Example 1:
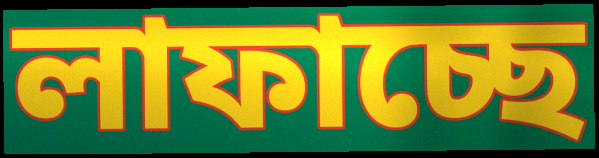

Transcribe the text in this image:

লাফাচ্ছে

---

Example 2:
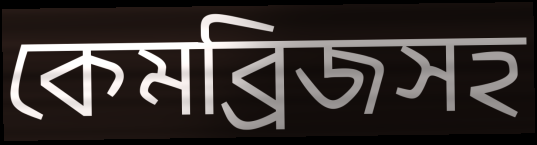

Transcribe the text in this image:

কেমব্রিজসহ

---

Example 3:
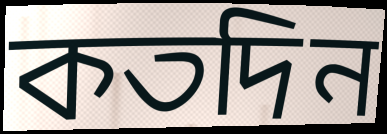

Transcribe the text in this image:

কতদিন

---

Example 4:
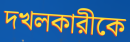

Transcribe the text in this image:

দখলকারীকে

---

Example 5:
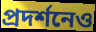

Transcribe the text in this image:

প্রদর্শনেও